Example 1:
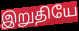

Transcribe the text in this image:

இறுதியே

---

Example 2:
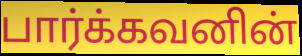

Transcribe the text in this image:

பார்க்கவனின்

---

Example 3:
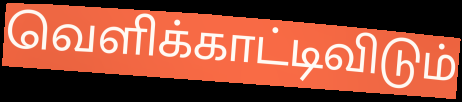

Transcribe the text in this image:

வெளிக்காட்டிவிடும்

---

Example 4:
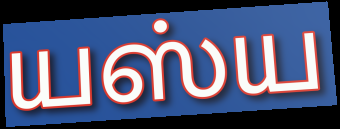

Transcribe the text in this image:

யஸ்ய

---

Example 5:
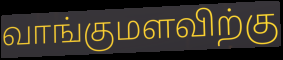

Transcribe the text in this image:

வாங்குமளவிற்கு